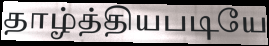
தாழ்த்தியபடியே